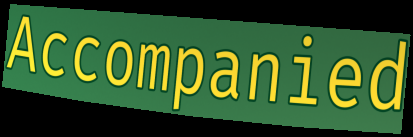
Accompanied